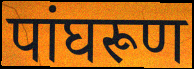
पांघरूण